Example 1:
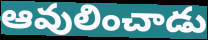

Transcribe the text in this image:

ఆవులించాడు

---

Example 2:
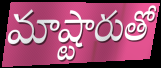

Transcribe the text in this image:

మాష్టారుతో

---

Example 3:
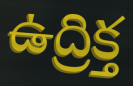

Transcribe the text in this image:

ఉద్రిక్త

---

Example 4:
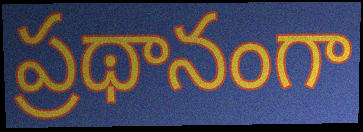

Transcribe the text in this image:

ప్రథానంగా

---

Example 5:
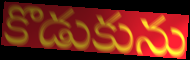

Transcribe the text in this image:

కొడుకును